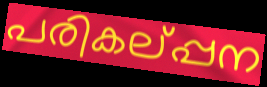
പരികല്പ്പന